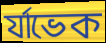
র্যাভেক